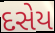
દસેય